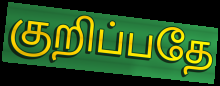
குறிப்பதே